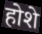
होशे